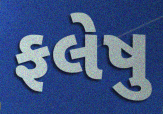
ફલેષુ